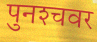
पुनश्चवर